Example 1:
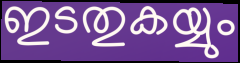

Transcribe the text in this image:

ഇടതുകയ്യും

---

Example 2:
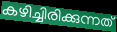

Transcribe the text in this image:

കഴിച്ചിരിക്കുന്നത്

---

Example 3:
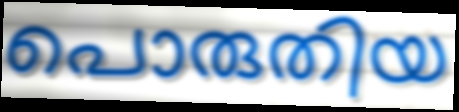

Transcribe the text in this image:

പൊരുതിയ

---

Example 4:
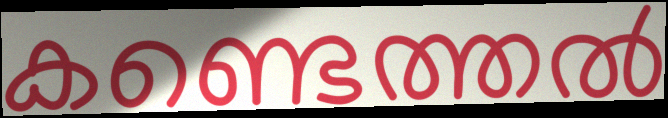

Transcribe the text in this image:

കണ്ടെത്തൽ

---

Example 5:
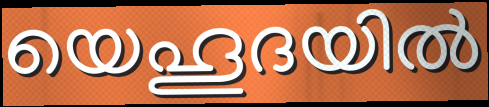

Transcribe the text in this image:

യെഹൂദയിൽ